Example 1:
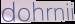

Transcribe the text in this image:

dohrnii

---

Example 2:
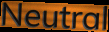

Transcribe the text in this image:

Neutral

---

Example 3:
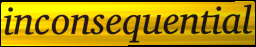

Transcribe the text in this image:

inconsequential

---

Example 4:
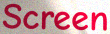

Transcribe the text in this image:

Screen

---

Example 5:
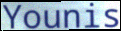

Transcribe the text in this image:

Younis